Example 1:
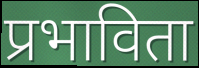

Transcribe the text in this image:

प्रभाविता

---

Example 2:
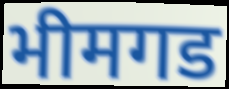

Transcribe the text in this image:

भीमगड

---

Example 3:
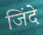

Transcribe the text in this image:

जिंदे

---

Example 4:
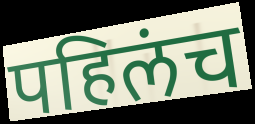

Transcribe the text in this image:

पहिलंच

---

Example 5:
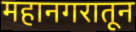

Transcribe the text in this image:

महानगरातून